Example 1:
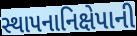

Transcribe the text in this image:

સ્થાપનાનિક્ષેપાની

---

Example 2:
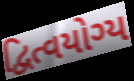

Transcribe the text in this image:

દ્વિત્વયોગ્ય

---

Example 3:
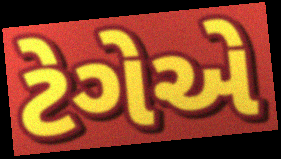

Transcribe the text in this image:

ટેગેએ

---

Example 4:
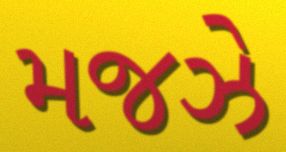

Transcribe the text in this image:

મજઝે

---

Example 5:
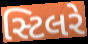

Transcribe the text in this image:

સ્ટિલરે